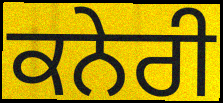
ਕਨੇਰੀ